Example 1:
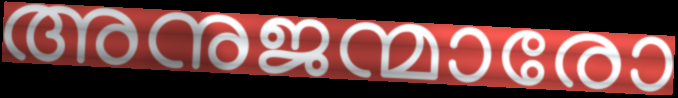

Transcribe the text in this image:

അനുജന്മാരോ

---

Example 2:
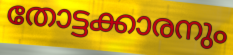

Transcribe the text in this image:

തോട്ടക്കാരനും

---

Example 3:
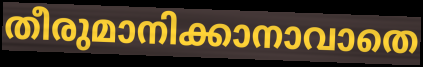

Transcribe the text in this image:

തീരുമാനിക്കാനാവാതെ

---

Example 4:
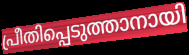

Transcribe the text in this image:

പ്രീതിപ്പെടുത്താനായി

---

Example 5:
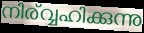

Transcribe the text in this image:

നിര്വ്വഹിക്കുന്നു